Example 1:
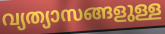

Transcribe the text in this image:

വ്യത്യാസങ്ങളുള്ള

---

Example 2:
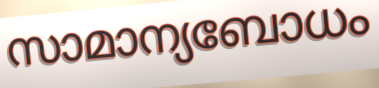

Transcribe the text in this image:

സാമാന്യബോധം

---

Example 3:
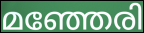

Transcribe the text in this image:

മഞ്ഞേരി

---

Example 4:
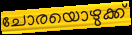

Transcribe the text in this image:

ചോരയൊഴുക്ക്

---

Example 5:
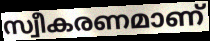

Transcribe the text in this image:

സ്വീകരണമാണ്